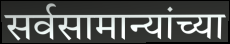
सर्वसामान्यांच्या